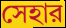
সেহার